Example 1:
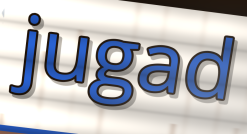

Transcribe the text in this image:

jugad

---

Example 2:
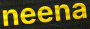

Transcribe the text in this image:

neena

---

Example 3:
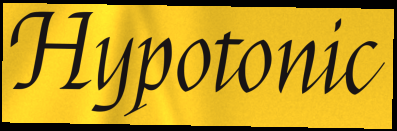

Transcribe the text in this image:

Hypotonic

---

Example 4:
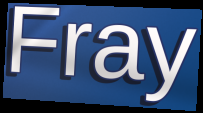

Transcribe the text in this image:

Fray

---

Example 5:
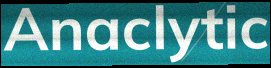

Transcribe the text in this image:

Anaclytic